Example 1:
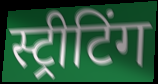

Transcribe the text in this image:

स्ट्रीटिंग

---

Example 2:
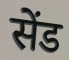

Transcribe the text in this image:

सेंड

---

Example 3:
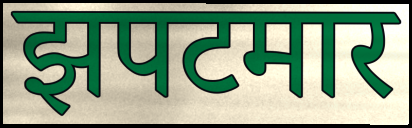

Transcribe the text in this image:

झपटमार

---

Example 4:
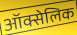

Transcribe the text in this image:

ऑक्सेलिक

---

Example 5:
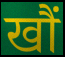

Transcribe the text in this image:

खौं